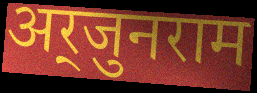
अर्जुनराम